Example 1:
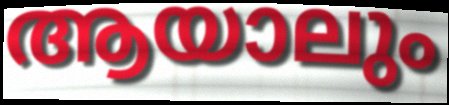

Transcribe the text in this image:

ആയാലും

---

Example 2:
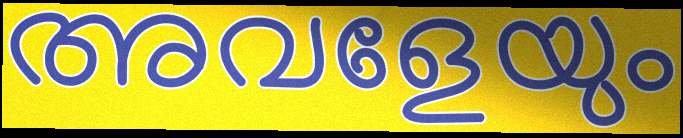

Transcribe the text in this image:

അവളേയും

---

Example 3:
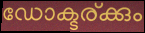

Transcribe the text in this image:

ഡോക്ടര്ക്കും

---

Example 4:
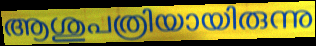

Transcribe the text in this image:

ആശുപത്രിയായിരുന്നു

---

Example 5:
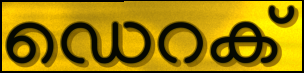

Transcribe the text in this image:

ഡെറക്